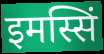
इमस्सिं